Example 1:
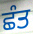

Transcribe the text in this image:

ਛੰਤ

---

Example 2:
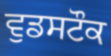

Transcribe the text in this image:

ਵੁਡਸਟੌਕ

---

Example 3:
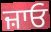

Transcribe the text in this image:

ਜ਼ਾਓ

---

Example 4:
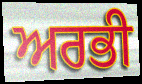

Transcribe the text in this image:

ਅਰਭੀ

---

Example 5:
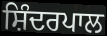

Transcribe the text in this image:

ਸ਼ਿੰਦਰਪਾਲ